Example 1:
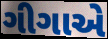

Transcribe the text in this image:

ગીગાએ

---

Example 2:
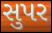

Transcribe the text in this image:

સુપર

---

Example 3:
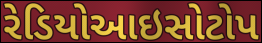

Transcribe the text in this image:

રેડિયોઆઇસોટોપ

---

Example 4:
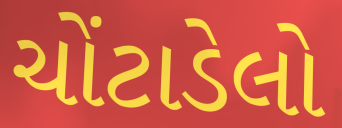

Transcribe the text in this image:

ચોંટાડેલો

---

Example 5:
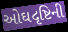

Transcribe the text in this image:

ઓઘદૃષ્ટિની